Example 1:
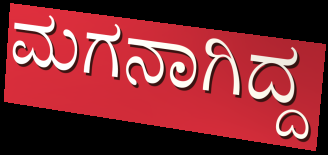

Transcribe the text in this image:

ಮಗನಾಗಿದ್ದ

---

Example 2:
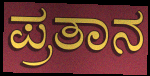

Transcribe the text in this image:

ಪ್ರತಾನ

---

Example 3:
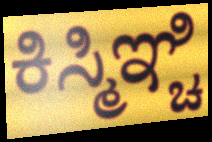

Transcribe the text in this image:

ಕಿಸ್ಮಿಞ್ಚಿ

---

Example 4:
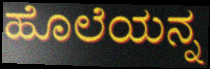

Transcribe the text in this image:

ಹೊಲೆಯನ್ನ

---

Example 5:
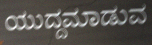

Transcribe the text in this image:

ಯುದ್ದಮಾಡುವ